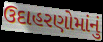
ઉદાહરણોમાંનું